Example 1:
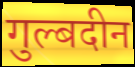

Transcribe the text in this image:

गुल्बदीन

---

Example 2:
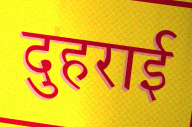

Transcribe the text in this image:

दुहराई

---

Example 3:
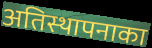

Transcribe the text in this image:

अतिस्थापनाका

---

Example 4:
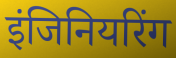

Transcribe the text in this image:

इंजिनियरिंग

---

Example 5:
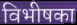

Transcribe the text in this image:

विभीषका